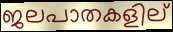
ജലപാതകളില്